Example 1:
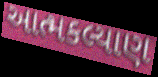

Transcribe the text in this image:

આત્મકલ્યાણ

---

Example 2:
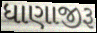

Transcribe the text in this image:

ધાણાજીરૂ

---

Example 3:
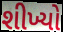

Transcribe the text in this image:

શીખ્યો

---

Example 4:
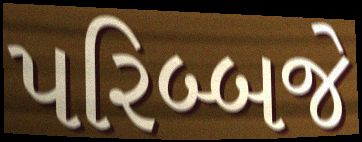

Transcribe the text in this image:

પરિબ્બજે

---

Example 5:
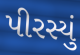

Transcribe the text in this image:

પીરસ્યું